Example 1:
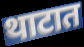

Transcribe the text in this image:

थाटात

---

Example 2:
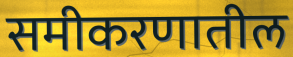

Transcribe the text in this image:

समीकरणातील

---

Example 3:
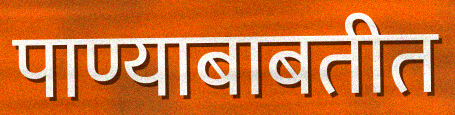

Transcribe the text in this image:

पाण्याबाबतीत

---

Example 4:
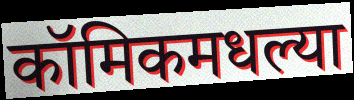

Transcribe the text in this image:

कॉमिकमधल्या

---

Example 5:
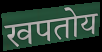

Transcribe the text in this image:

खपतोय